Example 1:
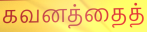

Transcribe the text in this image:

கவனத்தைத்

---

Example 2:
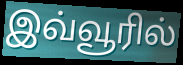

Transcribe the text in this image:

இவ்வூரில்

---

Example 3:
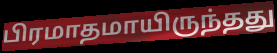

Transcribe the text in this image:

பிரமாதமாயிருந்தது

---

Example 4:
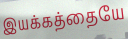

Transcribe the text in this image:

இயக்கத்தையே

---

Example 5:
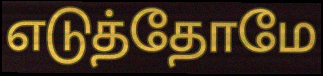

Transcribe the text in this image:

எடுத்தோமே